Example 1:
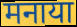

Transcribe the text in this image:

मनाया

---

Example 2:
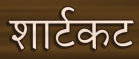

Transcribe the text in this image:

शार्टकट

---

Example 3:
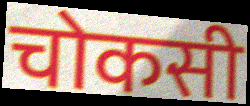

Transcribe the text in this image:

चोकसी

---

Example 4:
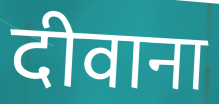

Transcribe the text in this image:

दीवाना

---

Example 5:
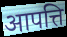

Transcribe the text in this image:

आपत्ति